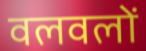
वलवलों